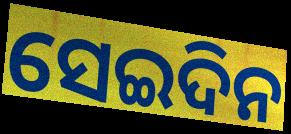
ସେଇଦିନ